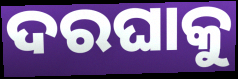
ଦରଘାକୁ